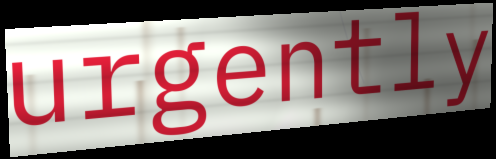
urgently